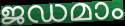
ജഡമാം